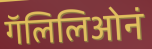
गॅलिलिओनं